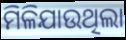
ମିଳିଯାଉଥିଲା